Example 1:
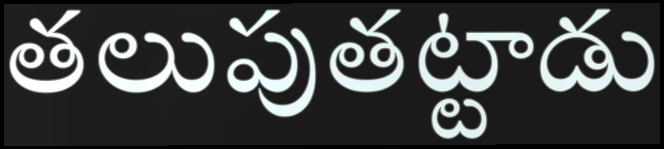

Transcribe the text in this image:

తలుపుతట్టాడు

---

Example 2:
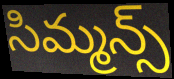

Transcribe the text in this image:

సిమ్మన్స్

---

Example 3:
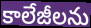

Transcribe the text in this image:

కాలేజీలను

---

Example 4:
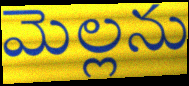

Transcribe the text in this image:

మెల్లను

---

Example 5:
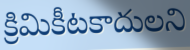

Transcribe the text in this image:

క్రిమికీటకాదులని